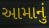
આમાનું